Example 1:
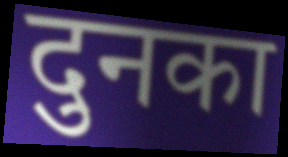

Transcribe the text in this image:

दुनका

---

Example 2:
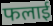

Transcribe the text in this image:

फलाई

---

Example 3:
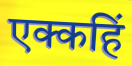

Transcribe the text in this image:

एक्कहिं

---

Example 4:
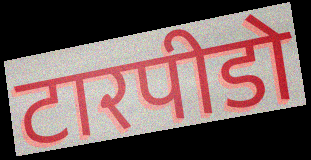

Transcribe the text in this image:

टारपीडो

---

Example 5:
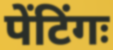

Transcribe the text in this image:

पेंटिंगः